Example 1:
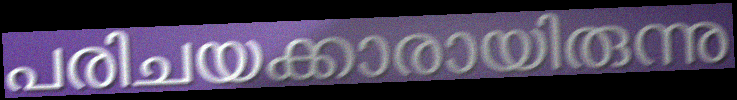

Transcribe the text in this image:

പരിചയക്കാരായിരുന്നു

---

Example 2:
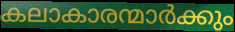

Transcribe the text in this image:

കലാകാരന്മാർക്കും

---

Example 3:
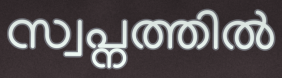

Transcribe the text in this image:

സ്വപ്നത്തിൽ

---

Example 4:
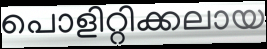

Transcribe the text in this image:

പൊളിറ്റിക്കലായ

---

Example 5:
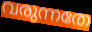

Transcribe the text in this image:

വരുന്നതേ